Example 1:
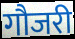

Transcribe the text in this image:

गौजरी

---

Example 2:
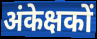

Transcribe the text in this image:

अंकेक्षकों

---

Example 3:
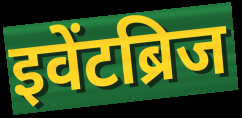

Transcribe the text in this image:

इवेंटब्रिज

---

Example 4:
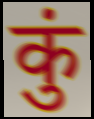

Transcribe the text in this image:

कुं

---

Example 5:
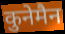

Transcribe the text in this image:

कुनेमैन